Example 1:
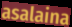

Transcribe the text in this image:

asalaina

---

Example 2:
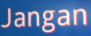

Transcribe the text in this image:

Jangan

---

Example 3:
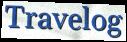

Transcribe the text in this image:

Travelog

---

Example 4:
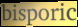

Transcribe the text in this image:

bisporic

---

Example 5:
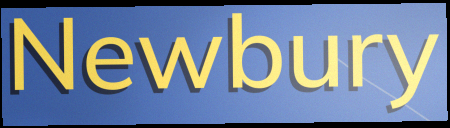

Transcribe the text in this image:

Newbury